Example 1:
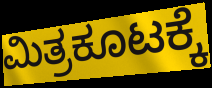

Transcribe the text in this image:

ಮಿತ್ರಕೂಟಕ್ಕೆ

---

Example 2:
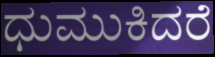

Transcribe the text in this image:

ಧುಮುಕಿದರೆ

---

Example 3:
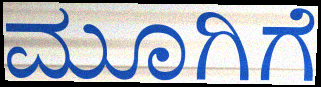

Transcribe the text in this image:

ಮೂಗಿಗೆ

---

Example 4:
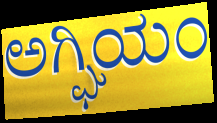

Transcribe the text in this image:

ಅಗ್ಘಿಯಂ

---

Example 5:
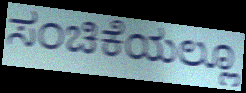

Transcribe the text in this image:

ಸಂಚಿಕೆಯಲ್ಲೂ